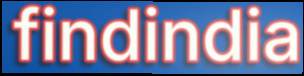
findindia